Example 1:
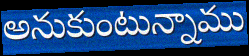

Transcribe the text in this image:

అనుకుంటున్నాము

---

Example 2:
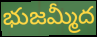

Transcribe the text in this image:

భుజమ్మీద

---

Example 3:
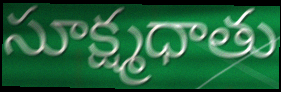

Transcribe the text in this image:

సూక్ష్మధాతు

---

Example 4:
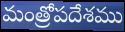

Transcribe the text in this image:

మంత్రోపదేశము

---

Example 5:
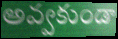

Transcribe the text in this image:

అవ్వకుండా